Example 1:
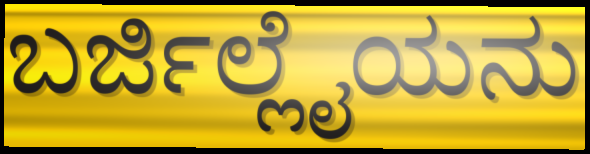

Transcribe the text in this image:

ಬರ್ಜಿಲ್ಲೈಯನು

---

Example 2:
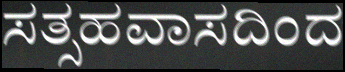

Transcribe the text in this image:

ಸತ್ಸಹವಾಸದಿಂದ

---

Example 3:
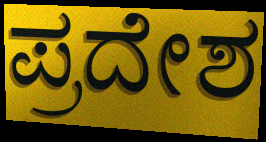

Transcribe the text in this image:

ಪ್ರದೇಶ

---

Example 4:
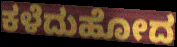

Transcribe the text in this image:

ಕಳೆದುಹೋದ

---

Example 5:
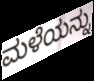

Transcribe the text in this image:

ಮಳೆಯನ್ನು